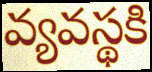
వ్యవస్థకి